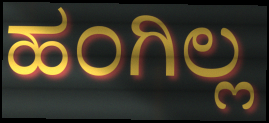
ಹಂಗಿಲ್ಲ